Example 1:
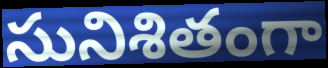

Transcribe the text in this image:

సునిశితంగా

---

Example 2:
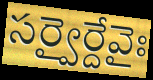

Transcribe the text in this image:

సర్వైర్దేవైః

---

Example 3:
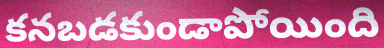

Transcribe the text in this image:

కనబడకుండాపోయింది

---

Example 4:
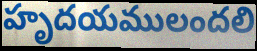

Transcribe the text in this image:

హృదయములందలి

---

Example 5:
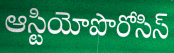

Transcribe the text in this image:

ఆస్టియోపొరోసిస్